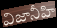
విజానీహి